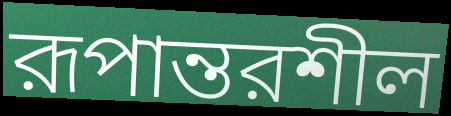
রূপান্তরশীল